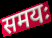
समयः